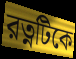
রত্নটিকে